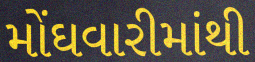
મોંઘવારીમાંથી